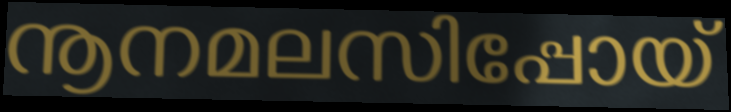
നൂനമലസിപ്പോയ്